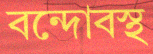
বন্দোবস্থ